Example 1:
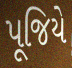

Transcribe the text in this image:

પૂજિયે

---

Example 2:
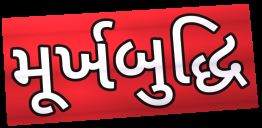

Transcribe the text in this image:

મૂર્ખબુદ્ધિ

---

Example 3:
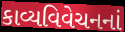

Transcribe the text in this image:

કાવ્યવિવેચનનાં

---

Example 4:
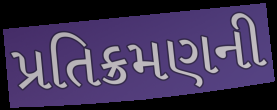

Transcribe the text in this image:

પ્રતિક્રમણની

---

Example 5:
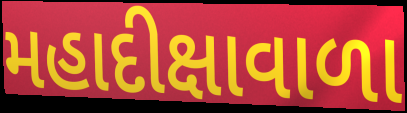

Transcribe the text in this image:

મહાદીક્ષાવાળા